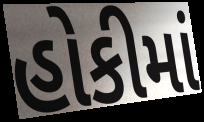
હોકીમાં